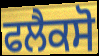
ਫਲੈਕਸੋ